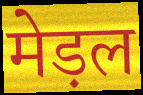
मेड़ल